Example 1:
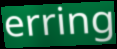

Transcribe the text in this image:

erring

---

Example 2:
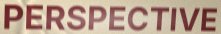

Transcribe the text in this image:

PERSPECTIVE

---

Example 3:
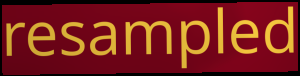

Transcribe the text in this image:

resampled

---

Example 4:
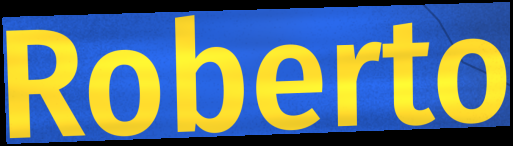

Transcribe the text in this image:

Roberto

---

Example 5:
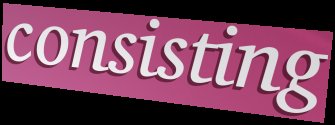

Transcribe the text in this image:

consisting